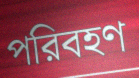
পরিবহণ